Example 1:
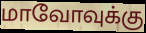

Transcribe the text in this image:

மாவோவுக்கு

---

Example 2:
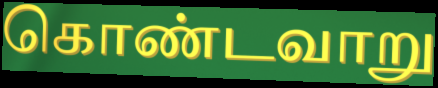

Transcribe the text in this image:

கொண்டவாறு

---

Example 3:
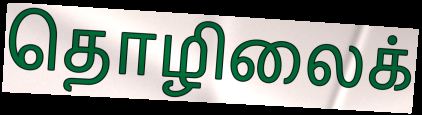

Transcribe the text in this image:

தொழிலைக்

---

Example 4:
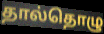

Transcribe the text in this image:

தால்தொழு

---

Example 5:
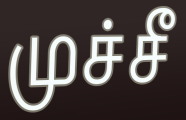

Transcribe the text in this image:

முச்சீ